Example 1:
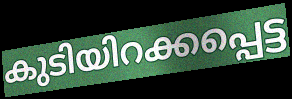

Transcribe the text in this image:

കുടിയിറക്കപ്പെട്ട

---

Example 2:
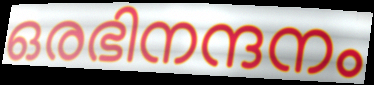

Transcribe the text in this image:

ഒരഭിനന്ദനം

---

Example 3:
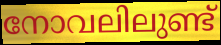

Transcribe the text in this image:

നോവലിലുണ്ട്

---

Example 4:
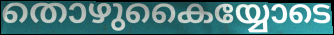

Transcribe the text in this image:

തൊഴുകൈയ്യോടെ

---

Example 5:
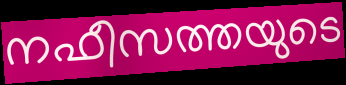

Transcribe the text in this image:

നഫീസത്തയുടെ